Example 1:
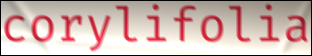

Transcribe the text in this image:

corylifolia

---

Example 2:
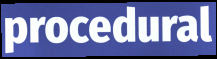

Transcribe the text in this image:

procedural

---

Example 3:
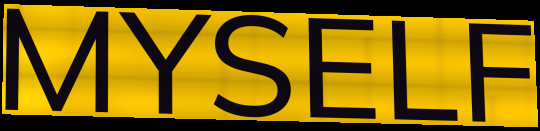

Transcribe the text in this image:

MYSELF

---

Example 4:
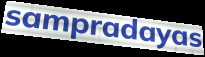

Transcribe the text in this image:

sampradayas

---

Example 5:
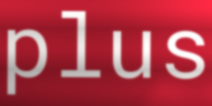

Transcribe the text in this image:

plus